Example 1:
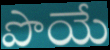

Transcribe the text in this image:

పొయే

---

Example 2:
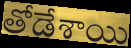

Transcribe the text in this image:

తోడేశాయి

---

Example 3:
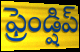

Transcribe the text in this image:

ఫ్రెండ్షిప్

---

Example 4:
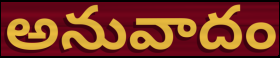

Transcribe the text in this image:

అనువాదం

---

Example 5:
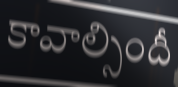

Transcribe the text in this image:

కావాల్సిందీ